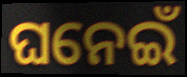
ଘନେଇଁ